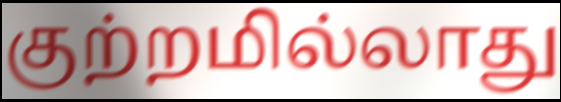
குற்றமில்லாது